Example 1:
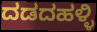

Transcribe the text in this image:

ದಡದಹಳ್ಳಿ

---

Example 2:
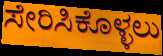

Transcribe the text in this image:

ಸೇರಿಸಿಕೊಳ್ಳಲು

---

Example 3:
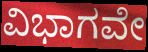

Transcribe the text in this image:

ವಿಭಾಗವೇ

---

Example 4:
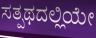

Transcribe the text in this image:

ಸತ್ಪಥದಲ್ಲಿಯೇ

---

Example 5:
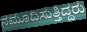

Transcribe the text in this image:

ನಮೂದಿಸುತ್ತಿದ್ದರು